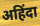
अहिंदा